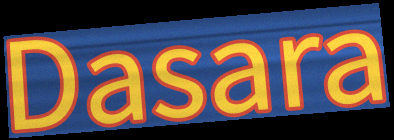
Dasara